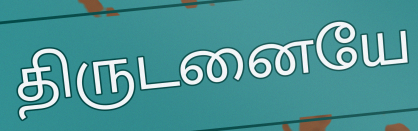
திருடனையே